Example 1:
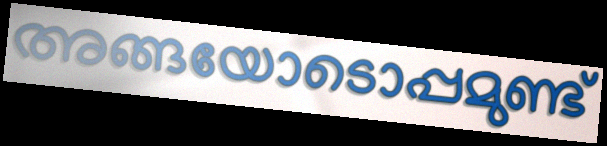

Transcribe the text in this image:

അങ്ങയോടൊപ്പമുണ്ട്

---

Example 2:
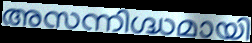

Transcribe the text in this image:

അസന്നിഗ്ദ്ധമായി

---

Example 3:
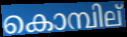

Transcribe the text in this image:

കൊമ്പില്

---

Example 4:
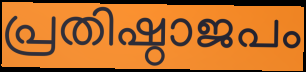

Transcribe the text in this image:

പ്രതിഷ്ഠാജപം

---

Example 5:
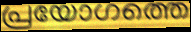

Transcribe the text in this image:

പ്രയോഗത്തെ